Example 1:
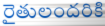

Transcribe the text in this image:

రైతులందరికి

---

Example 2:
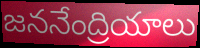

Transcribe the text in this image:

జననేంద్రియాలు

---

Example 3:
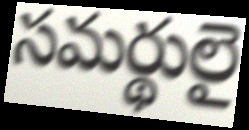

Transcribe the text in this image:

సమర్థులై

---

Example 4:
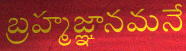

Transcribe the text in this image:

బ్రహ్మజ్ఞానమనే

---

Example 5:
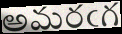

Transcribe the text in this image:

అమరఁగ